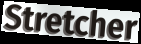
Stretcher